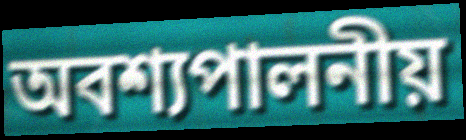
অবশ্যপালনীয়